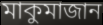
মাকুমাজান